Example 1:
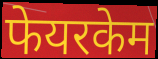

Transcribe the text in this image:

फेयरकेम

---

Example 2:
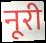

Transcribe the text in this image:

नूरी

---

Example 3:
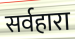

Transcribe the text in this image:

सर्वहारा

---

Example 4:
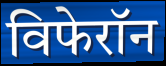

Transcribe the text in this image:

विफेरॉन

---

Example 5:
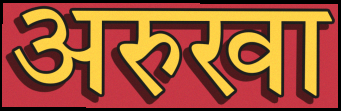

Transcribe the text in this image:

अरुखा